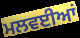
ਮਲਵਈਆਂ